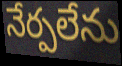
నేర్పలేను